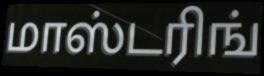
மாஸ்டரிங்